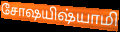
சோஷயிஷ்யாமி